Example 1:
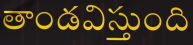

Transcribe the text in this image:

తాండవిస్తుంది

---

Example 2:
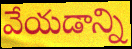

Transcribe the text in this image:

వేయడాన్ని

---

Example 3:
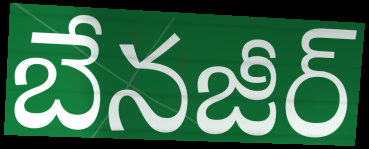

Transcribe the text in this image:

బేనజీర్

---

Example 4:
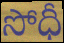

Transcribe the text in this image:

సోధీ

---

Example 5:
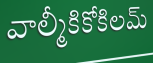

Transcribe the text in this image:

వాల్మీకికోకిలమ్